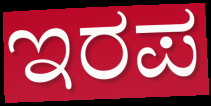
ಇರಪ